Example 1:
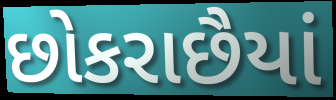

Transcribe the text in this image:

છોકરાછૈયાં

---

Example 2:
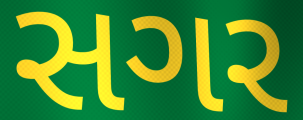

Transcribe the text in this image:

સગર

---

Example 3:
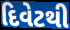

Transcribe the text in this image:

દિવેટથી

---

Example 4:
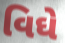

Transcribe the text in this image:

વિઘે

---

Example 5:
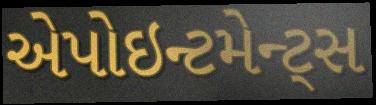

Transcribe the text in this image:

એપોઇન્ટમેન્ટ્સ